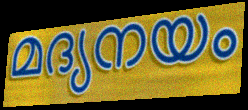
മദ്യനയം